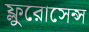
ফ্লুরোসেন্স